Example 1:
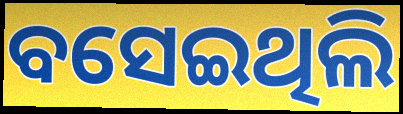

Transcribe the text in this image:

ବସେଇଥିଲି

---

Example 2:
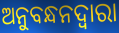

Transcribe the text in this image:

ଅନୁବନ୍ଧନଦ୍ୱାରା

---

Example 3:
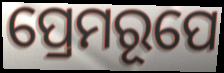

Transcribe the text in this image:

ପ୍ରେମରୂପେ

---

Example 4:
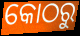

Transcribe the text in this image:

କୋଠରୁ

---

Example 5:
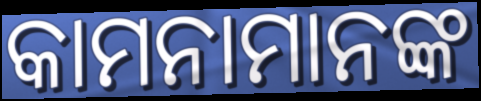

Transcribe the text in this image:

କାମନାମାନଙ୍କ